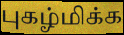
புகழ்மிக்க